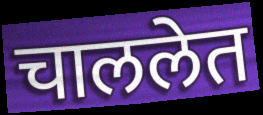
चाललेत